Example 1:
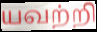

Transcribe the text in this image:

யவற்றி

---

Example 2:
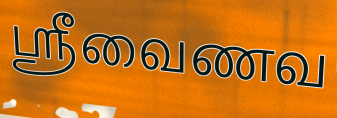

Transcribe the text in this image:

ஸ்ரீவைணவ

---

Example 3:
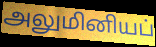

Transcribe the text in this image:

அலுமினியப்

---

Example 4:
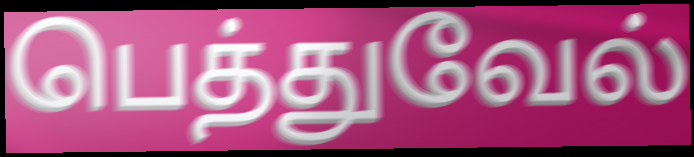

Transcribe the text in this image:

பெத்துவேல்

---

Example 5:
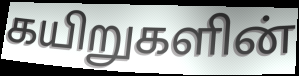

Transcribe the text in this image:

கயிறுகளின்